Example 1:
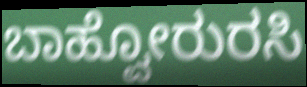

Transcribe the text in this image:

ಬಾಹ್ವೋರುರಸಿ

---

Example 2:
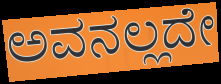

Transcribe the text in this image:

ಅವನಲ್ಲದೇ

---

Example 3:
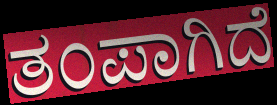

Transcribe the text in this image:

ತಂಪಾಗಿದೆ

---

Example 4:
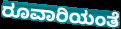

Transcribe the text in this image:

ರೂವಾರಿಯಂತೆ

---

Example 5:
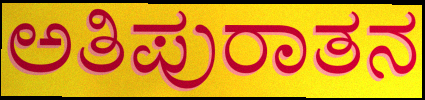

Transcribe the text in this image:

ಅತಿಪುರಾತನ